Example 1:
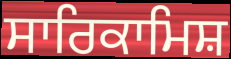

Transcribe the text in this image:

ਸਾਰਿਕਾਮਿਸ਼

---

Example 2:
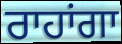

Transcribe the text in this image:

ਰਾਹਾਂਗਾ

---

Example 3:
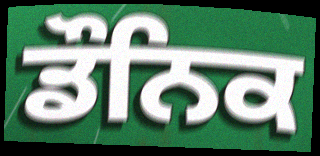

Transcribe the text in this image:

ਡੌਨਿਕ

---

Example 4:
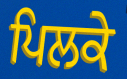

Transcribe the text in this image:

ਪਿਲਕੇ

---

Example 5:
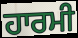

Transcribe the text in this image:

ਹਾਰਮੀ